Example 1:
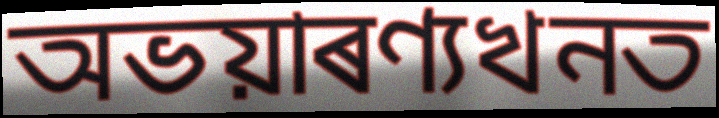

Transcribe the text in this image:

অভয়াৰণ্যখনত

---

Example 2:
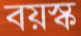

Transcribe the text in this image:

বয়স্ক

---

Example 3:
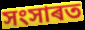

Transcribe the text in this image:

সংসাৰত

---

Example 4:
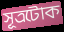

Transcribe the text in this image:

সূত্ৰটোক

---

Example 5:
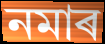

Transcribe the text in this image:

নমাৰ